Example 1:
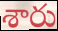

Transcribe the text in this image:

శారు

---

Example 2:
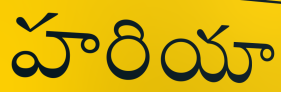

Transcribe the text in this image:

హరియా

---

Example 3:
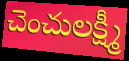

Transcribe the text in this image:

చెంచులక్ష్మీ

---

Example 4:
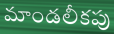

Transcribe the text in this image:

మాండలీకపు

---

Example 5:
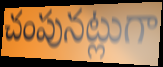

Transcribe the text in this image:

చంపునట్లుగా